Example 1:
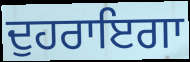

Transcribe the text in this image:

ਦੁਹਰਾਇਗਾ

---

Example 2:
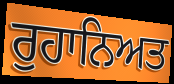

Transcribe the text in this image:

ਰੁਹਾਨਿਅਤ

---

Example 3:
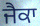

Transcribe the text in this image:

ਜੈਕਾ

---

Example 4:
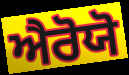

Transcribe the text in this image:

ਐਰੋਯੋ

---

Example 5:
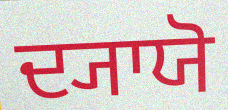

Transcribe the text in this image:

ਦ੍ਯਾਯੋ